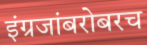
इंग्रजांबरोबरच